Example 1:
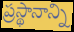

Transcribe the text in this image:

ప్రస్థానాన్ని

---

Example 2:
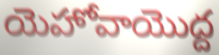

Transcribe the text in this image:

యెహోవాయొద్ద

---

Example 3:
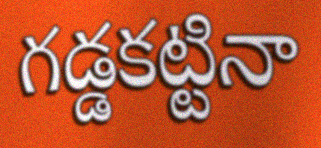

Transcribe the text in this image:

గడ్డకట్టినా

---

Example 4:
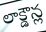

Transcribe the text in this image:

లాక్డౌన్ల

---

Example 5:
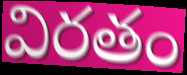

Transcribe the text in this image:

విరతం